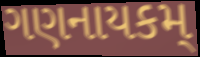
ગણનાયકમ્